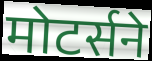
मोटर्सने